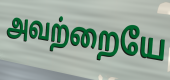
அவற்றையே